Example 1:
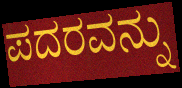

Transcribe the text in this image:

ಪದರವನ್ನು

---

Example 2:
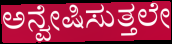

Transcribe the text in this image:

ಅನ್ವೇಷಿಸುತ್ತಲೇ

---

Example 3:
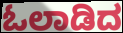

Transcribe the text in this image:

ಓಲಾಡಿದ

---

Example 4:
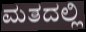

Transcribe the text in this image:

ಮತದಲ್ಲಿ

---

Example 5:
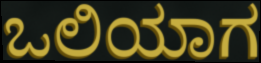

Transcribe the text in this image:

ಒಲಿಯಾಗ